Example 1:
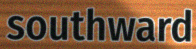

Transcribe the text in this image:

southward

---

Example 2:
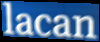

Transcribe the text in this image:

lacan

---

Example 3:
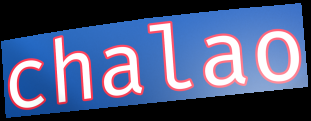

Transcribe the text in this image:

chalao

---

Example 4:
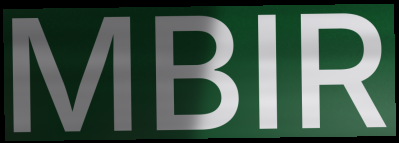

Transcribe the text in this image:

MBIR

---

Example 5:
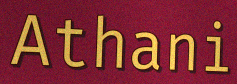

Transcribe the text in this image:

Athani